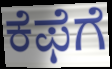
ಕೆಫೆಗೆ